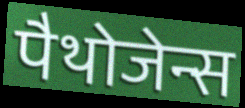
पैथोजेन्स